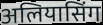
अलियासिंग